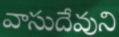
వాసుదేవుని